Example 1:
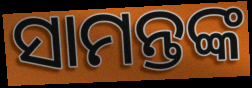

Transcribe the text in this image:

ସାମନ୍ତଙ୍କ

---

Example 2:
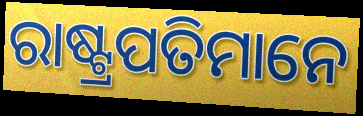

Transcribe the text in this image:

ରାଷ୍ଟ୍ରପତିମାନେ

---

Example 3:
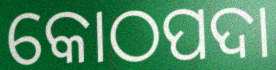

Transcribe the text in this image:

କୋଠପଦା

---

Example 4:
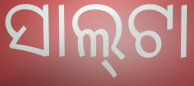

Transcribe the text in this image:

ସାଲ୍‌ଟା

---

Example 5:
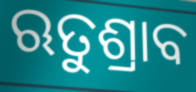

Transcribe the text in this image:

ଋତୁଶ୍ରାବ